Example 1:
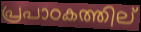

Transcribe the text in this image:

പ്രപാഠകത്തില്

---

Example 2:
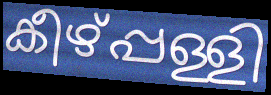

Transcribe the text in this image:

കീഴ്പ്പള്ളി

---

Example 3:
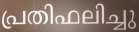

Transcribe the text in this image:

പ്രതിഫലിച്ചു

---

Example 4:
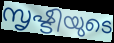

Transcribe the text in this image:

സൃഷ്ടിയുടെ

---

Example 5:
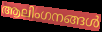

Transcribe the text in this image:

ആലിംഗനങ്ങൾ